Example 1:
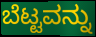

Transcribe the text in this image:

ಬೆಟ್ಟವನ್ನು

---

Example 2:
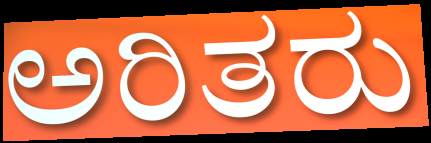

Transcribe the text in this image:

ಅರಿತರು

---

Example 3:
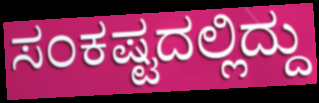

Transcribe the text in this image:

ಸಂಕಷ್ಟದಲ್ಲಿದ್ದು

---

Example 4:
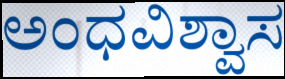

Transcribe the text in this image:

ಅಂಧವಿಶ್ವಾಸ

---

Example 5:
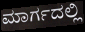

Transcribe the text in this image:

ಮಾರ್ಗದಲ್ಲಿ